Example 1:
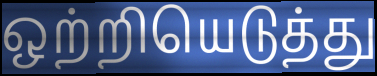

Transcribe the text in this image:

ஒற்றியெடுத்து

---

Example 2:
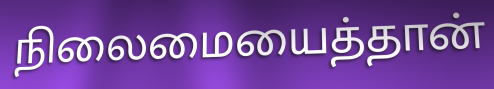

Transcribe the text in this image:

நிலைமையைத்தான்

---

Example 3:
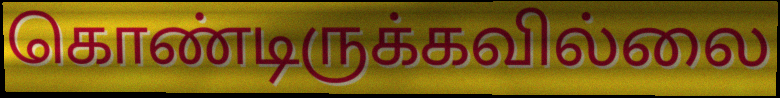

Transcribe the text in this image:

கொண்டிருக்கவில்லை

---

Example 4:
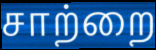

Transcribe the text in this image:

சாற்றை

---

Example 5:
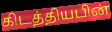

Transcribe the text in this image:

கிடத்தியபின்